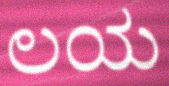
ಲಯ